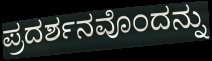
ಪ್ರದರ್ಶನವೊಂದನ್ನು